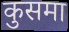
कुसमा